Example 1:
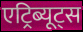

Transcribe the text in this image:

एट्रिब्यूट्स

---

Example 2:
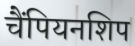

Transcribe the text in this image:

चैंपियनशिप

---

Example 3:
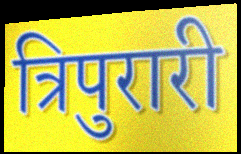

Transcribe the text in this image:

त्रिपुरारी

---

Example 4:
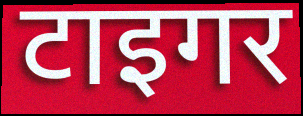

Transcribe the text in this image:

टाइगर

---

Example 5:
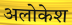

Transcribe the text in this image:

अलोकेश